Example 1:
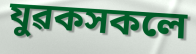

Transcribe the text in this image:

যুৱকসকলে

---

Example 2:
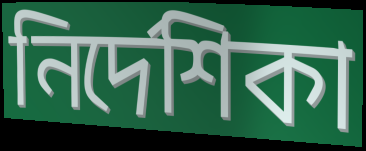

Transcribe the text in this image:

নিৰ্দেশিকা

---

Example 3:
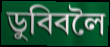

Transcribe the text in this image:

ডুবিবলৈ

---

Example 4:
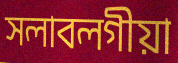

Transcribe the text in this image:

সলাবলগীয়া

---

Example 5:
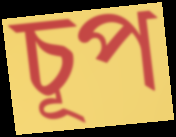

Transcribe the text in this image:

চূপ